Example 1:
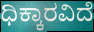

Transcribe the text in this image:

ಧಿಕ್ಕಾರವಿದೆ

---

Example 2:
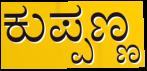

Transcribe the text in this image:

ಕುಪ್ಪಣ್ಣ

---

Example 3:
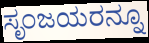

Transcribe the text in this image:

ಸೃಂಜಯರನ್ನೂ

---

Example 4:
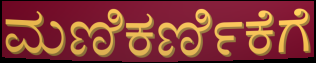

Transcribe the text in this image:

ಮಣಿಕರ್ಣಿಕೆಗೆ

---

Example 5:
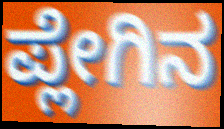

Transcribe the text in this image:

ಪ್ಲೇಗಿನ